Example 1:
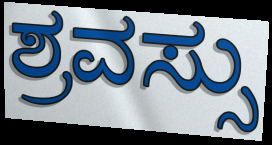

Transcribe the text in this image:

ಶ್ರವಸ್ಸು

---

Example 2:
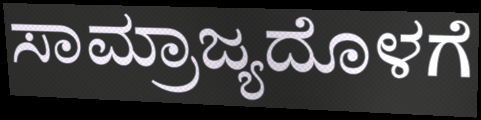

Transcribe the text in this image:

ಸಾಮ್ರಾಜ್ಯದೊಳಗೆ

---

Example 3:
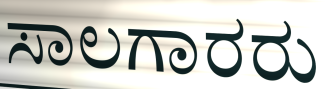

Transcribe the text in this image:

ಸಾಲಗಾರರು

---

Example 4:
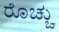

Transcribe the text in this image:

ರೊಚ್ಚು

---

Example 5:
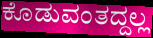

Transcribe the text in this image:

ಕೊಡುವಂತದ್ದಲ್ಲ